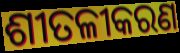
ଶୀତଳୀକରଣ